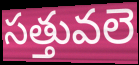
సత్తువలె